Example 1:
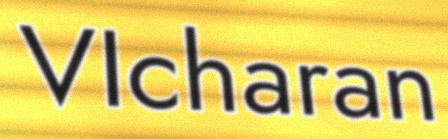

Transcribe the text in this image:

VIcharan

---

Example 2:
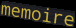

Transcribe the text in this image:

memoire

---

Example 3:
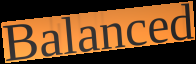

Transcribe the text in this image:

Balanced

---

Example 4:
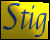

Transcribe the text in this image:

Stig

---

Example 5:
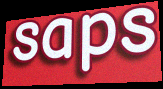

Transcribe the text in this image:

saps